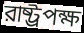
রাষ্ট্রপক্ষ